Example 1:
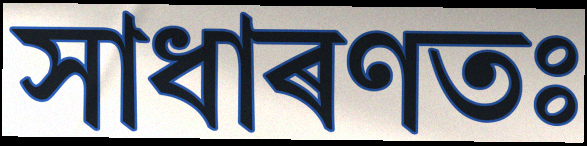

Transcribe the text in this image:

সাধাৰণতঃ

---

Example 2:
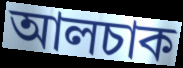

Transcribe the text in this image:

আলচাক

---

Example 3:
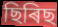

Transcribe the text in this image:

ছিৰিছ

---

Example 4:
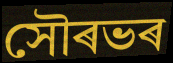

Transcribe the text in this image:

সৌৰভৰ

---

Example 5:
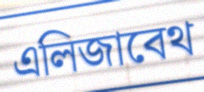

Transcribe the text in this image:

এলিজাবেথ